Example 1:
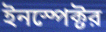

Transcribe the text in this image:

ইনস্পেক্টর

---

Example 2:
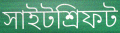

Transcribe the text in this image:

সাইটশ্রিফট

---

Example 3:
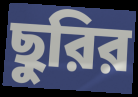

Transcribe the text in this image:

ছুরির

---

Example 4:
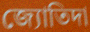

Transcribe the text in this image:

জ্যোতিদা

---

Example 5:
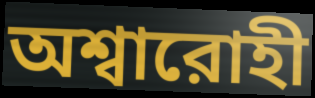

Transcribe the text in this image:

অশ্বারোহী